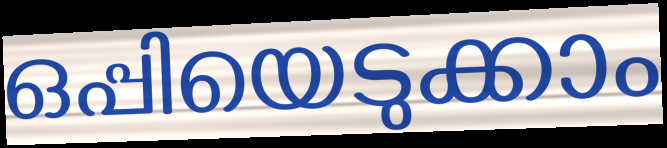
ഒപ്പിയെടുക്കാം